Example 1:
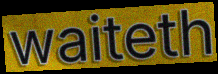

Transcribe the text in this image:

waiteth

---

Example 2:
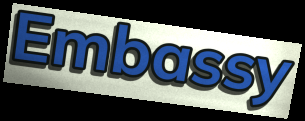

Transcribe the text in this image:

Embassy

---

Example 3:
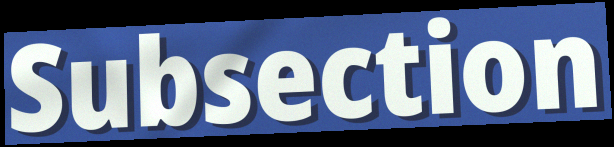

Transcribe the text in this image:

Subsection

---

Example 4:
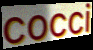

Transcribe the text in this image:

cocci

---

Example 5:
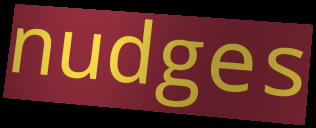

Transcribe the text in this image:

nudges